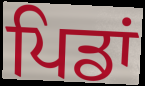
ਪਿਡਾਂ